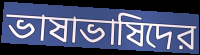
ভাষাভাষিদের